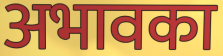
अभावका